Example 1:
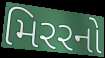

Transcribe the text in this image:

મિરરનો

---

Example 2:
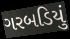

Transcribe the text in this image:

ગરબડિયું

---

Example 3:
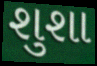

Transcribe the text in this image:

શુશા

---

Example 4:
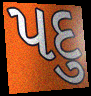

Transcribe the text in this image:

પદુ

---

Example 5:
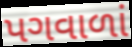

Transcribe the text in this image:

પગવાળાં